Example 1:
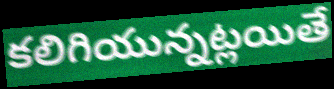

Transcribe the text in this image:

కలిగియున్నట్లయితే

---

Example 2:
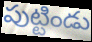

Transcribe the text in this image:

పుట్టిండు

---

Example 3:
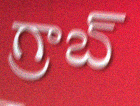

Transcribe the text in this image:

గ్రాబ్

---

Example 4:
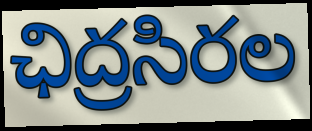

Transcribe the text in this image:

ఛిద్రసిరల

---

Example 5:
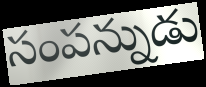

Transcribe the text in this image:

సంపన్నుడు